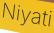
Niyati